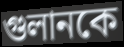
গুলানকে